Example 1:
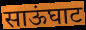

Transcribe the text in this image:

साऊंघाट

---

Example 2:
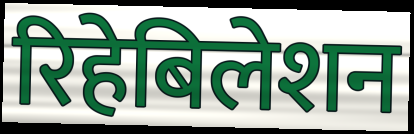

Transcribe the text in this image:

रिहेबिलेशन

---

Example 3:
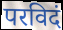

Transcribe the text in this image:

परविदं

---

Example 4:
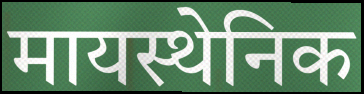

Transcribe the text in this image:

मायस्थेनिक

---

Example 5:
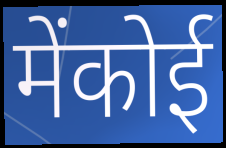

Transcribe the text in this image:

मेंकोई